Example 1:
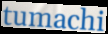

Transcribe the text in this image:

tumachi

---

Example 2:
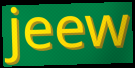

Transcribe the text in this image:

jeew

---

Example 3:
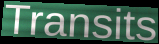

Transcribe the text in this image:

Transits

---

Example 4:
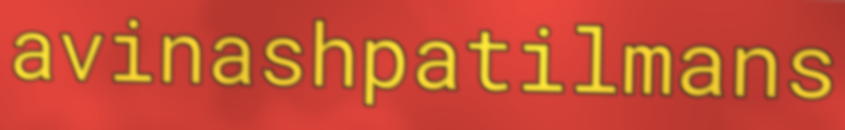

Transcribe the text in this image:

avinashpatilmans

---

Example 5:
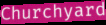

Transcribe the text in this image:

Churchyard